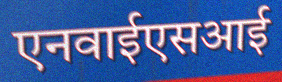
एनवाईएसआई